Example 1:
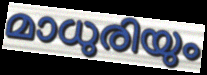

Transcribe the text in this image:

മാധുരിയും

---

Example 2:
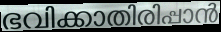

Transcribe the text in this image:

ഭവിക്കാതിരിപ്പാൻ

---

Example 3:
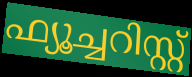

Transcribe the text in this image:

ഫ്യൂച്ചറിസ്റ്റ്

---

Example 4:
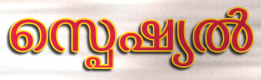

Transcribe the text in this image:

സ്പെഷ്യൽ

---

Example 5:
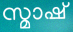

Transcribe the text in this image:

സ്മാഷ്